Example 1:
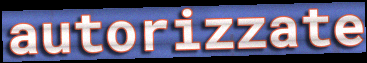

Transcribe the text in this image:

autorizzate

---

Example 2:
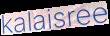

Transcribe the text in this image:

kalaisree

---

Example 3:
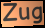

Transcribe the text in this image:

Zug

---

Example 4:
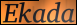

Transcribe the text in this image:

Ekada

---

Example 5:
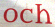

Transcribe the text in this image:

och